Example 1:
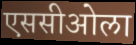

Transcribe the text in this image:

एससीओला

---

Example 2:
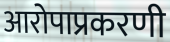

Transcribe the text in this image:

आरोपाप्रकरणी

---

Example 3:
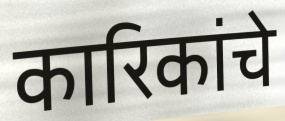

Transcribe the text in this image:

कारिकांचे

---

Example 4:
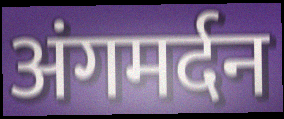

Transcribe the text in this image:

अंगमर्दन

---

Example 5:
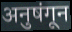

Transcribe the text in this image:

अनुषंगून